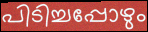
പിടിച്ചപ്പോഴും